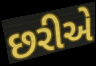
છરીએ